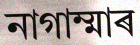
নাগাম্মাৰ